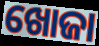
ଖୋଜା